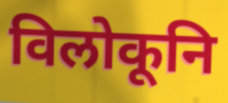
विलोकूनि